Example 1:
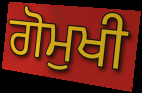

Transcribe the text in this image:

ਗੋਮੁਖੀ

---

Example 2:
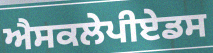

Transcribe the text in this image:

ਐਸਕਲੇਪੀਏਡਸ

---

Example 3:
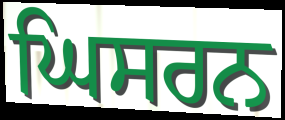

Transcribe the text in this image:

ਘਿਸਰਨ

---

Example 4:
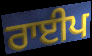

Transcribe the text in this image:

ਰਾਈਪ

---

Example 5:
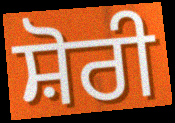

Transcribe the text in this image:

ਸ਼ੋਰੀ